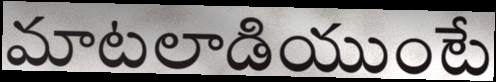
మాటలాడియుంటే